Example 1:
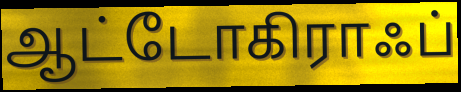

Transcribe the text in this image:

ஆட்டோகிராஃப்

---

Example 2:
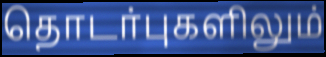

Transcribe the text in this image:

தொடர்புகளிலும்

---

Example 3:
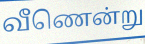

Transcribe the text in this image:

வீணென்று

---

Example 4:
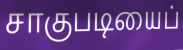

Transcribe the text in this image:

சாகுபடியைப்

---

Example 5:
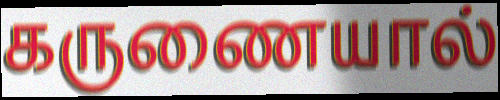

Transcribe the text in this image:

கருணையால்